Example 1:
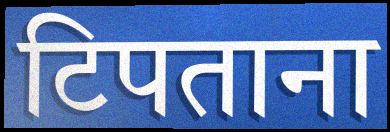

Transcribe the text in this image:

टिपताना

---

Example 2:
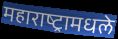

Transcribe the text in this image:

महाराष्ट्रामधले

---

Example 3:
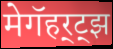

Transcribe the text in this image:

मेगॅहर्ट्‌झ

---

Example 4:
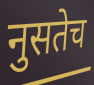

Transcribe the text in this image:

नुसतेच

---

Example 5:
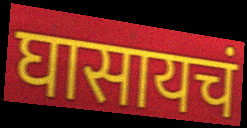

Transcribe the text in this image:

घासायचं